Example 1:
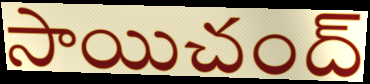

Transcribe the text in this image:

సాయిచంద్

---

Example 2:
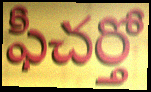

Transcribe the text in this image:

ఫీచర్తో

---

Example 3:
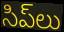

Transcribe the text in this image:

సిప్‌లు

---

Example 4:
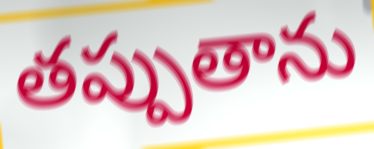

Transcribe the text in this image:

తప్పుతాను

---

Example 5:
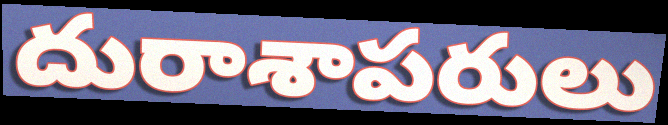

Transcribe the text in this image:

దురాశాపరులు